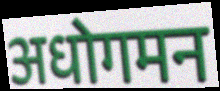
अधोगमन